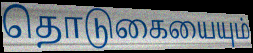
தொடுகையையும்